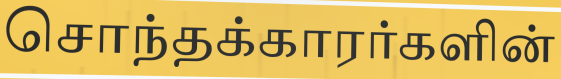
சொந்தக்காரர்களின்